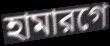
হামারগে